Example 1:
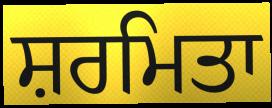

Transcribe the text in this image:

ਸ਼ਰਮਿਤਾ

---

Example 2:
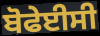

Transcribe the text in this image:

ਬੋਫੇਈਸੀ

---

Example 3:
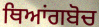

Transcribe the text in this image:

ਥਿਆਂਗਬੋਚ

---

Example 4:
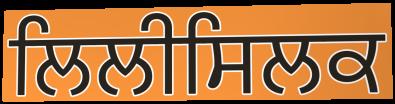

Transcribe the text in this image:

ਲਿਲੀਸਿਲਕ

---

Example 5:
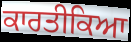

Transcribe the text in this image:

ਕਾਰਤੀਕਿਆ